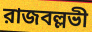
রাজবল্লভী